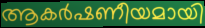
ആകർഷണീയമായി